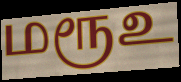
மரூஉ